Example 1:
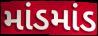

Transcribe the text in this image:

માંડમાંડ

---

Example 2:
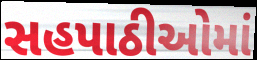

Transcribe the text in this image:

સહપાઠીઓમાં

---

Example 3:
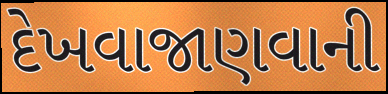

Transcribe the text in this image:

દેખવાજાણવાની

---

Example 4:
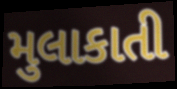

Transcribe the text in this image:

મુલાકાતી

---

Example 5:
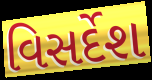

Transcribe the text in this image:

વિસર્દેશ